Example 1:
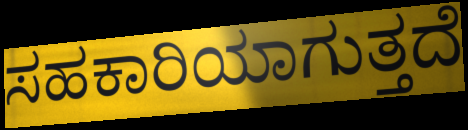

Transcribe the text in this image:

ಸಹಕಾರಿಯಾಗುತ್ತದೆ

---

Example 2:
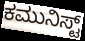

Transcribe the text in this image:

ಕಮುನಿಸ್ಟ್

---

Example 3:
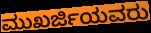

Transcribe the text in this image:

ಮುಖರ್ಜಿಯವರು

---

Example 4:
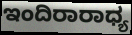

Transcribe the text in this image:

ಇಂದಿರಾರಾಧ್ಯ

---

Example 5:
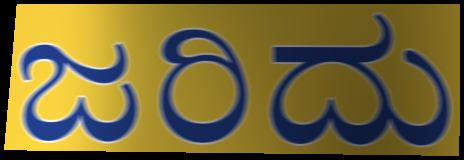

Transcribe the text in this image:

ಜರಿದು